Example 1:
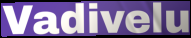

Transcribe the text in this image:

Vadivelu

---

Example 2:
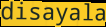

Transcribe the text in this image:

disayala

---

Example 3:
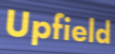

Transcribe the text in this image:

Upfield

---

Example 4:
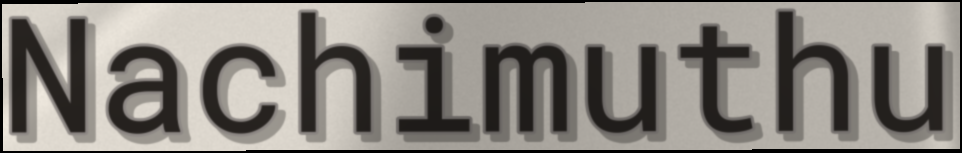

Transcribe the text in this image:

Nachimuthu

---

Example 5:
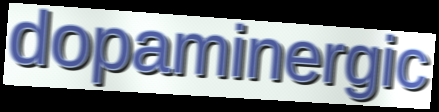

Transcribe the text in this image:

dopaminergic